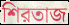
শিরতাজ